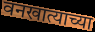
वनखात्याच्या